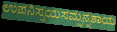
ಉಪನಿಸ್ಸಯಸಮ್ಪನ್ನತಾಯ